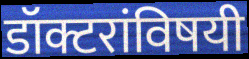
डॉक्टरांविषयी